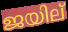
ജയില്